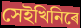
সেইখিনিৰে